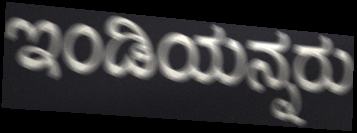
ಇಂಡಿಯನ್ನರು